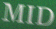
MID